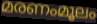
മരണംമൂലം